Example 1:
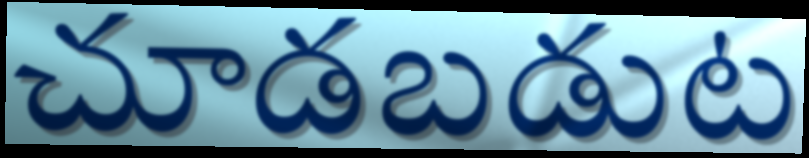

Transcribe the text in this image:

చూడబడుట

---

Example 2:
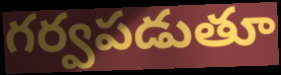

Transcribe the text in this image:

గర్వపడుతూ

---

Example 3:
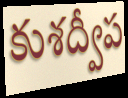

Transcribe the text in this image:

కుశద్వీప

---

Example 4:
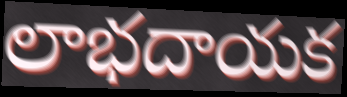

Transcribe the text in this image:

లాభదాయక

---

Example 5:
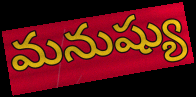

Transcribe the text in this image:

మనుష్యు